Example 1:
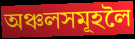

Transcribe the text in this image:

অঞ্চলসমূহলৈ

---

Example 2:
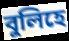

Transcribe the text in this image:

বুলিহে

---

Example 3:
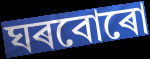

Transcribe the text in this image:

ঘৰবোৰো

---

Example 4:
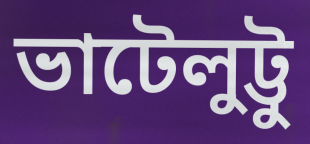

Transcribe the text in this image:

ভাটেলুট্টু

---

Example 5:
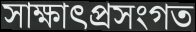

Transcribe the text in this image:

সাক্ষাৎপ্ৰসংগত